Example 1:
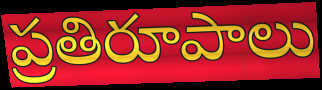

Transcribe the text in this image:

ప్రతిరూపాలు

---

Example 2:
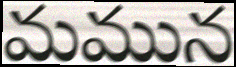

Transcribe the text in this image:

మమున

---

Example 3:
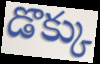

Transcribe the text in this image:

డొక్కు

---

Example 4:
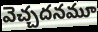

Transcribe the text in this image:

వెచ్చదనమూ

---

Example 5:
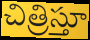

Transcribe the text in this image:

చిత్రిస్తూ